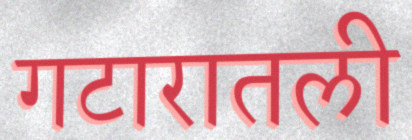
गटारातली